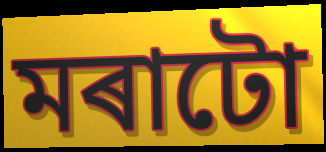
মৰাটো